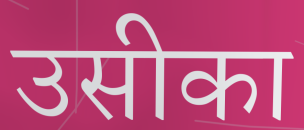
उसीका